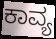
ಕಾವ್ಯ